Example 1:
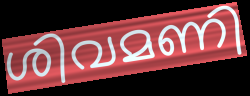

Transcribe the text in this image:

ശിവമണി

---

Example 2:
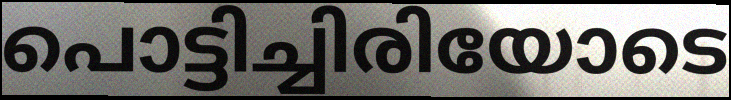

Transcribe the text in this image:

പൊട്ടിച്ചിരിയോടെ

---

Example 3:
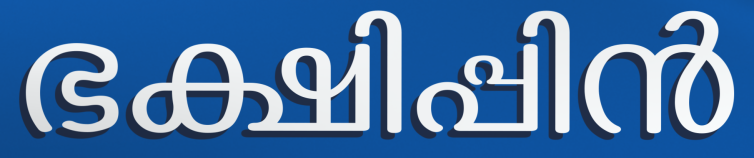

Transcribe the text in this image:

ഭക്ഷിപ്പിൻ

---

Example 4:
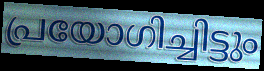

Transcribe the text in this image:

പ്രയോഗിച്ചിട്ടും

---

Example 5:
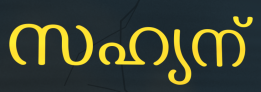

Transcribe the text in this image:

സഹ്യന്